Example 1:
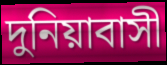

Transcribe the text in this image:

দুনিয়াবাসী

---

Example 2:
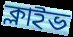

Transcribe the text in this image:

ক্লাইভ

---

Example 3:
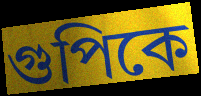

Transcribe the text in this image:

গুপিকে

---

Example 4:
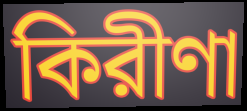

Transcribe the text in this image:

কিরীণা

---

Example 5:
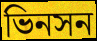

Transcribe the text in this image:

ভিনসন